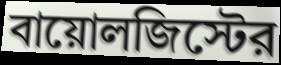
বায়োলজিস্টের